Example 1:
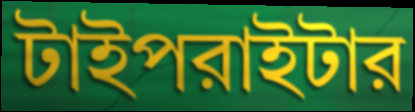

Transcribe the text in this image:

টাইপরাইটার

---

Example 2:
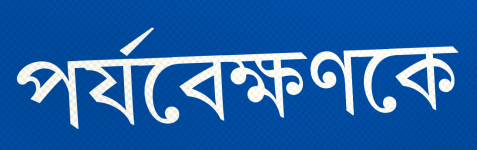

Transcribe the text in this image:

পর্যবেক্ষণকে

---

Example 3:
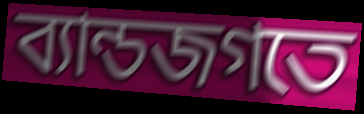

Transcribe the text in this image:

ব্যান্ডজগতে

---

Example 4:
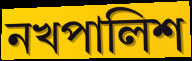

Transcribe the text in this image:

নখপালিশ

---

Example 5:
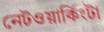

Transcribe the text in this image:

নেটওয়ার্কিংটা